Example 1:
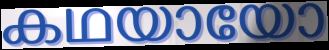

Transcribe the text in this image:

കഥയായോ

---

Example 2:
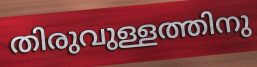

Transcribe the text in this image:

തിരുവുള്ളത്തിനു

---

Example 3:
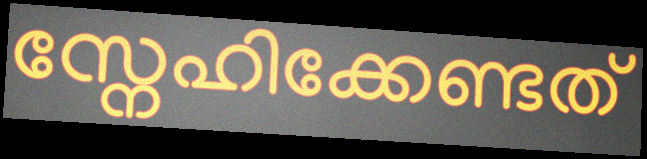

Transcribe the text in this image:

സ്നേഹിക്കേണ്ടത്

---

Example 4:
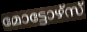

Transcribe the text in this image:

മോട്ടോഴ്സ്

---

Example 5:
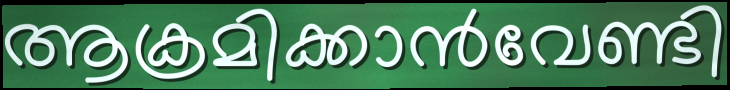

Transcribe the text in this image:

ആക്രമിക്കാൻവേണ്ടി